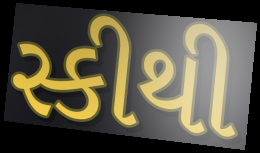
સ્કીથી